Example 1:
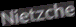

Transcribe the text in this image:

Nietzche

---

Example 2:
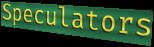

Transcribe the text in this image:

Speculators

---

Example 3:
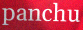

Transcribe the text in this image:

panchu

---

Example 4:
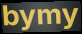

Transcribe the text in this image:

bymy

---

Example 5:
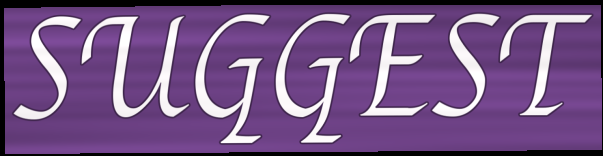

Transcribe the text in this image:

SUGGEST